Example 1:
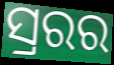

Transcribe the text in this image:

ସ୍ରରର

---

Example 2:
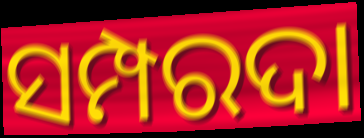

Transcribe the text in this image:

ସମ୍ପରଦା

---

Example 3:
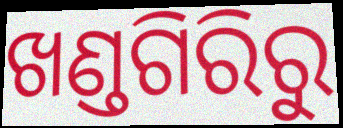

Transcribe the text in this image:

ଖଣ୍ଡଗିରିରୁ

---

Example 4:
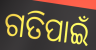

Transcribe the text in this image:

ଗତିପାଇଁ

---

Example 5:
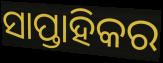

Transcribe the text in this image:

ସାପ୍ତାହିକର